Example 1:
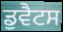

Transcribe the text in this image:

ਡੁਵੈਟਸ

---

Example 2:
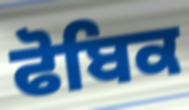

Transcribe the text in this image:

ਫੋਬਿਕ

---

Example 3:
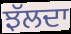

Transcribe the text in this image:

ਝੱਲਦਾ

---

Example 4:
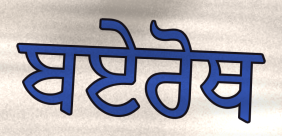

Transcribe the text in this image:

ਬਏਰੋਥ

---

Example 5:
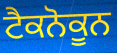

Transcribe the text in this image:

ਟੈਕਨੋਕੂਨ